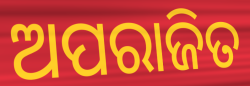
ଅପରାଜିତ